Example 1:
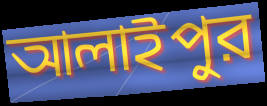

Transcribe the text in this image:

আলাইপুর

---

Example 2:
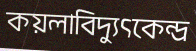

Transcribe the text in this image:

কয়লাবিদ্যুৎকেন্দ্র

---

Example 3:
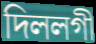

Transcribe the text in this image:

দিললগী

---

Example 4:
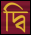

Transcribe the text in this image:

দ্বি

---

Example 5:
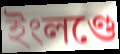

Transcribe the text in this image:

ইংলণ্ডে